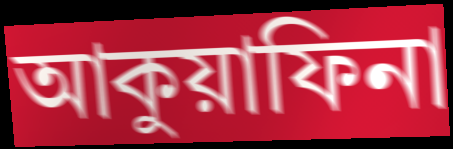
আকুয়াফিনা